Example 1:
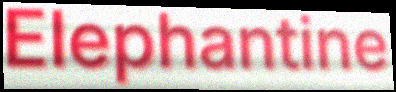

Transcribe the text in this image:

Elephantine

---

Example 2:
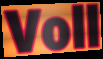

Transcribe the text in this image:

Voll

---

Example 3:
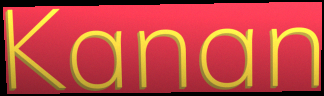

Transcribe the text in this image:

Kanan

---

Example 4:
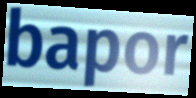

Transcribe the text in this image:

bapor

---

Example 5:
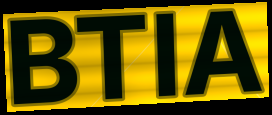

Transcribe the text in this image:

BTIA